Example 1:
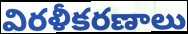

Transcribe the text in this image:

విరళీకరణాలు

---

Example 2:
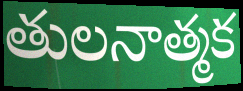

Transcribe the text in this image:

తులనాత్మక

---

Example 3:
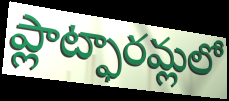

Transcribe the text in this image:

ప్లాట్ఫారమ్లలో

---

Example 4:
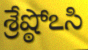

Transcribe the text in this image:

శ్రేష్ఠోఽసి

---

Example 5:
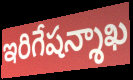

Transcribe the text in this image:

ఇరిగేషన్శాఖ